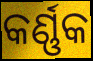
କର୍ଣ୍ଣକ